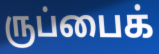
ருப்பைக்